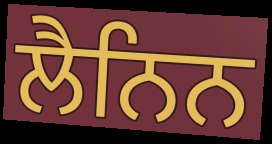
ਲੈਨਿਨ